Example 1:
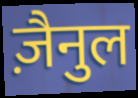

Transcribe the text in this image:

ज़ैनुल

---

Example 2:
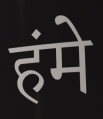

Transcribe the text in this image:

हंमे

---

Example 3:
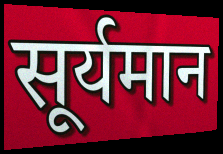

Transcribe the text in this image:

सूर्यमान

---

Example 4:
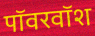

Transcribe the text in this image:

पॉवरवॉश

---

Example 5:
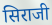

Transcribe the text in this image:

सिराजी